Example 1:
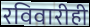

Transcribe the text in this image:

रविवारीही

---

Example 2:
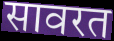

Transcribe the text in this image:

सावरत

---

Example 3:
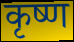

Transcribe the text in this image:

कृष्ण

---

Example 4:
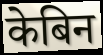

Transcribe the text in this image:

केबिन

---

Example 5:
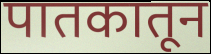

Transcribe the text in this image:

पातकातून